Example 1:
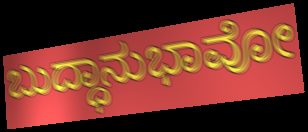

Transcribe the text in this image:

ಬುದ್ಧಾನುಭಾವೋ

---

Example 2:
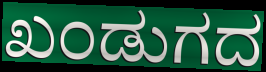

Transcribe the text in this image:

ಖಂಡುಗದ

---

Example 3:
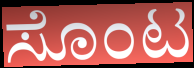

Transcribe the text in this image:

ಸೊಂಟ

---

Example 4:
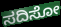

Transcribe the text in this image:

ಸದಿಸೋ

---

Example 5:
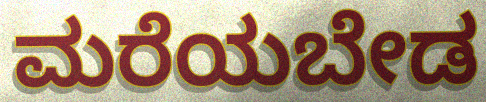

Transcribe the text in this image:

ಮರೆಯಬೇಡ